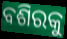
ବଶିରକୁ